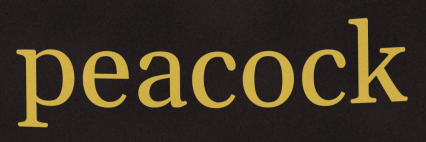
peacock